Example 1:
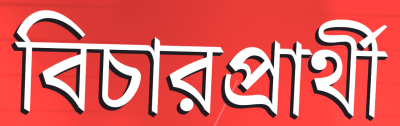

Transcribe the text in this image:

বিচারপ্রার্থী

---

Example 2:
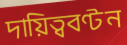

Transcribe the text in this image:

দায়িত্ববণ্টন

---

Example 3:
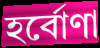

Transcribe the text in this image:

হর্বোণা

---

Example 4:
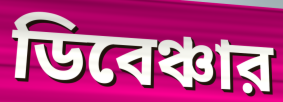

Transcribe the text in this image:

ডিবেঞ্চার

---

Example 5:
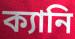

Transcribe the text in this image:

ক্যানি